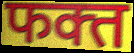
फक्‍त